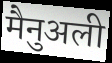
मैनुअली